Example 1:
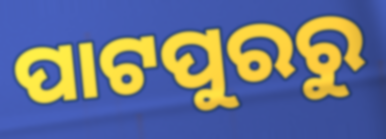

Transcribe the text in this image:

ପାଟପୁରରୁ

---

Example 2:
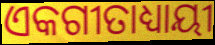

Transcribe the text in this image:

ଏକଗୀତାଧ୍ୟାୟୀ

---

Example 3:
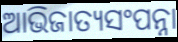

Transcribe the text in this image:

ଆଭିଜାତ୍ୟସଂପନ୍ନା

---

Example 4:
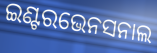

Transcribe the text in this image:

ଇଣ୍ଟରଭେନସନାଲ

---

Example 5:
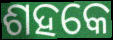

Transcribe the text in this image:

ଶହକେ